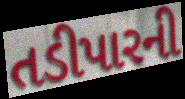
તડીપારની